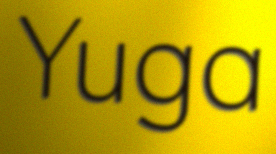
Yuga